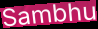
Sambhu